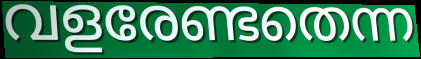
വളരേണ്ടതെന്ന